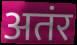
अतंर